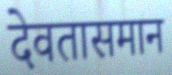
देवतासमान